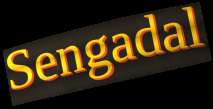
Sengadal